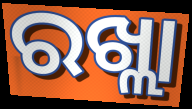
ରଖ୍ଲା